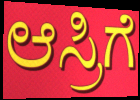
ಆಸ್ರಿಗೆ